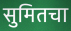
सुमितचा